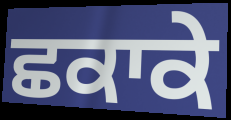
ਛਕਾਕੇ